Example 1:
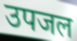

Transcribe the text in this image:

उपजल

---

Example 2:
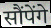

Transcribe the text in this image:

सौंपेंगे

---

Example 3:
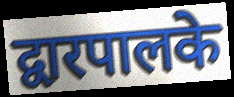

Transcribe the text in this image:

द्वारपालके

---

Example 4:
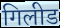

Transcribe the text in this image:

गिलीड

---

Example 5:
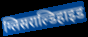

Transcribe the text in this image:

ग्लिसराल्डिहाइड